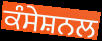
ਕੰਸੇਸ਼ਨਲ